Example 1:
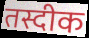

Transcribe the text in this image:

तस्‍दीक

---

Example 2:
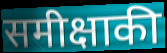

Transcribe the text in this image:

समीक्षाकी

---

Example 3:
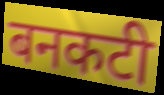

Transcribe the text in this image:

बनकटी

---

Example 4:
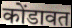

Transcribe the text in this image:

कोंडावत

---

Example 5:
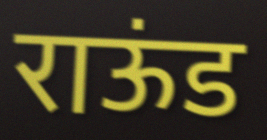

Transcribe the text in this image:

राऊंड